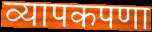
व्यापकपणा